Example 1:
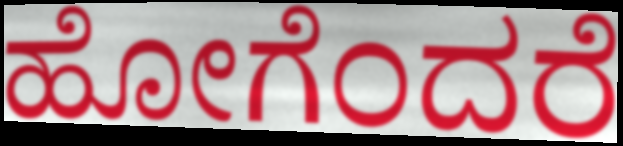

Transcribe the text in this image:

ಹೋಗೆಂದರೆ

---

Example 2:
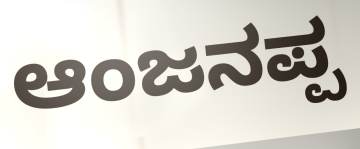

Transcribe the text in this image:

ಆಂಜನಪ್ಪ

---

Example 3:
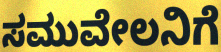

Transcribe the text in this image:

ಸಮುವೇಲನಿಗೆ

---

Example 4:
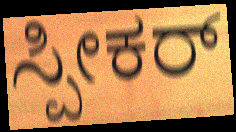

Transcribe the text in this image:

ಸ್ಪೀಕರ್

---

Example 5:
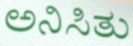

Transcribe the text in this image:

ಅನಿಸಿತು